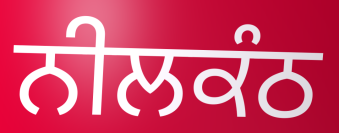
ਨੀਲਕੰਠ